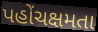
પહોંચક્ષમતા